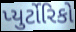
પ્યુર્ટોરિકો